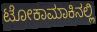
ಟೋಕಾಮಾಕಿನಲ್ಲಿ